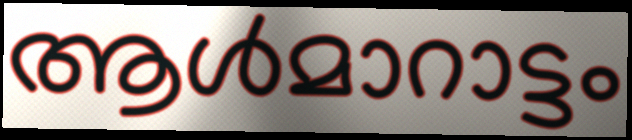
ആൾമാറാട്ടം